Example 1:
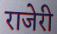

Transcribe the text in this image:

राजेरी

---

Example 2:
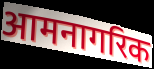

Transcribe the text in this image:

आमनागरिक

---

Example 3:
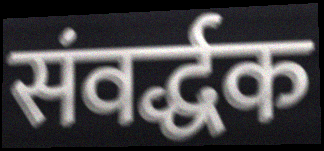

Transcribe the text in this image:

संवर्द्धक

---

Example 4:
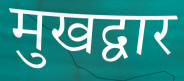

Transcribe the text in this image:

मुखद्वार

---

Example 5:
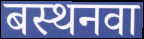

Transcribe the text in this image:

बस्थनवा